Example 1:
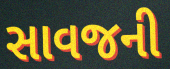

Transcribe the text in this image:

સાવજની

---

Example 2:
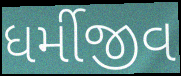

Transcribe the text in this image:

ધર્મીજીવ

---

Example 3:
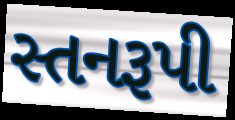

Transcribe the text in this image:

સ્તનરૂપી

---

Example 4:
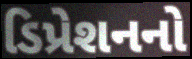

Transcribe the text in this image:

ડિપ્રેશનનો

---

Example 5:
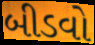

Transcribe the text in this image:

બીડવો